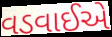
વડવાઈએ